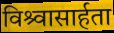
विश्र्वासार्हता